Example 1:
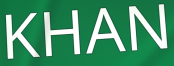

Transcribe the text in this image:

KHAN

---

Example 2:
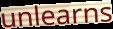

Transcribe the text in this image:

unlearns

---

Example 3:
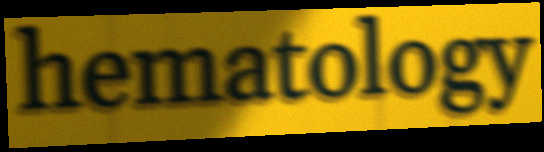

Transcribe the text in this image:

hematology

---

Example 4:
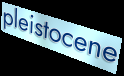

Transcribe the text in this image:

pleistocene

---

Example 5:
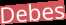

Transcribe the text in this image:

Debes